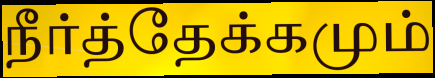
நீர்த்தேக்கமும்